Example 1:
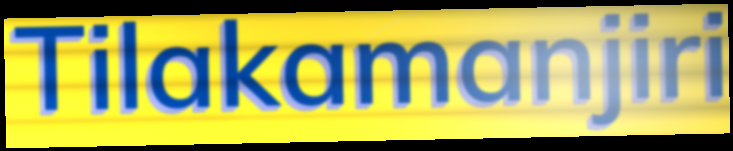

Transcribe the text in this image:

Tilakamanjiri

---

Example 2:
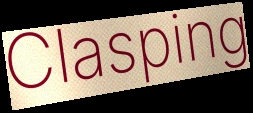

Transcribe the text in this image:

Clasping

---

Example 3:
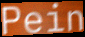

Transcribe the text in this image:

Pein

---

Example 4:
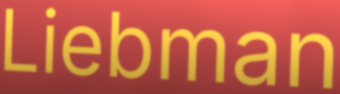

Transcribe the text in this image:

Liebman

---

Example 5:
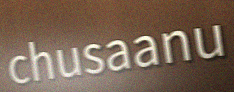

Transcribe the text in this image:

chusaanu